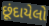
છૂંદાયેલો